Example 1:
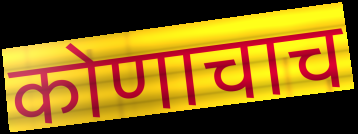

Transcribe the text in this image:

कोणाचाच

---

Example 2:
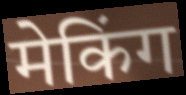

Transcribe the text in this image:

मेकिंग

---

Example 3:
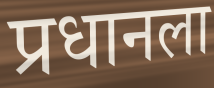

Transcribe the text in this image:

प्रधानला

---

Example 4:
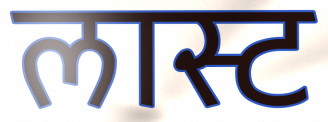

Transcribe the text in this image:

लास्ट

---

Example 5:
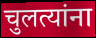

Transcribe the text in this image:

चुलत्यांना